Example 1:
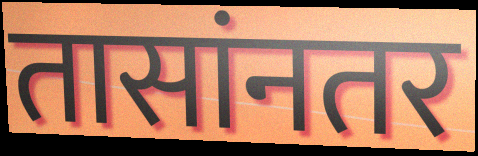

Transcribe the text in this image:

तासांनतर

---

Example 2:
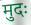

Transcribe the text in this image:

मुदः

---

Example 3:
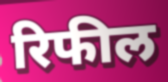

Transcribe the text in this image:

रिफील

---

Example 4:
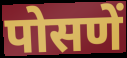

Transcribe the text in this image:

पोसणें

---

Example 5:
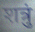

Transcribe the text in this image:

शत्रुं